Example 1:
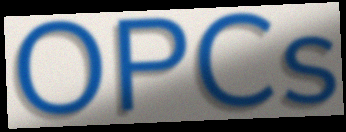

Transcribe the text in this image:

OPCs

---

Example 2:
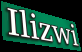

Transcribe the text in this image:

Ilizwi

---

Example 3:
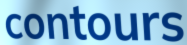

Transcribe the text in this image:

contours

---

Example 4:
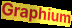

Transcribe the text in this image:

Graphium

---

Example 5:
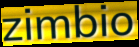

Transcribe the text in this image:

zimbio